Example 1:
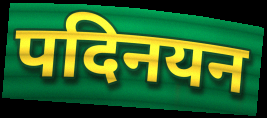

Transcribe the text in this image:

पदिनयन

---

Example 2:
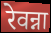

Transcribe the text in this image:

रेवन्ना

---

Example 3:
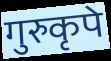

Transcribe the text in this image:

गुरुकृपे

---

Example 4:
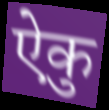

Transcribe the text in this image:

ऐकु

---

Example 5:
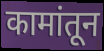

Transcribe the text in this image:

कामांतून